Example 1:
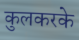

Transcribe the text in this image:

कुलकरके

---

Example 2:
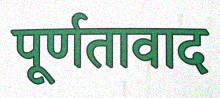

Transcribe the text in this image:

पूर्णतावाद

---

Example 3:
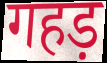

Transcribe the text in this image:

गहड़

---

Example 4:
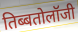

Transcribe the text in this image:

तिब्बतोलॉजी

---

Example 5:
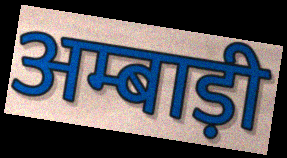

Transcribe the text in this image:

अम्बाड़ी